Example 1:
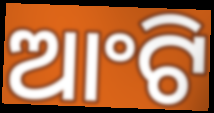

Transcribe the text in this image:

ଆଂଟି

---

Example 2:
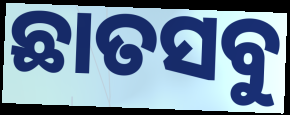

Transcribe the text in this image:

ଛାତସବୁ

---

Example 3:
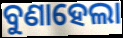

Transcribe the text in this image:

ବୁଣାହେଲା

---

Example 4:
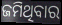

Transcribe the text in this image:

ଜମିଥିବାର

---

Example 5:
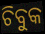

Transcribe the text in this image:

ଚିବୁକ